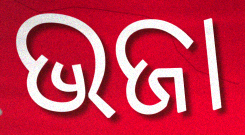
ଭଜା